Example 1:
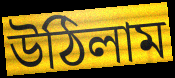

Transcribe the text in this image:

উঠিলাম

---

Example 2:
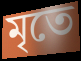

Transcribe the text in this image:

মৃতে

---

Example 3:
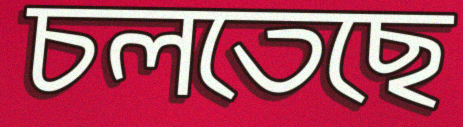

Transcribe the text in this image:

চলতেছে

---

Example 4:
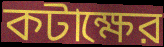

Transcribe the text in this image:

কটাক্ষের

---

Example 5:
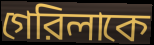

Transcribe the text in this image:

গেরিলাকে